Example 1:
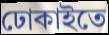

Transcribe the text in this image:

ঢোকাইতে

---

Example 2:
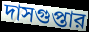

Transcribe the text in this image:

দাসগুপ্তার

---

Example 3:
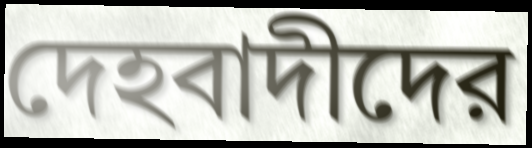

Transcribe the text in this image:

দেহবাদীদের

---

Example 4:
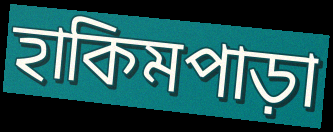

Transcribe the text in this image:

হাকিমপাড়া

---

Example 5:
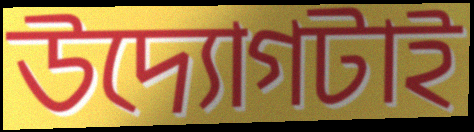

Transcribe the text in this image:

উদ্যোগটাই